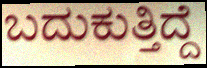
ಬದುಕುತ್ತಿದ್ದೆ